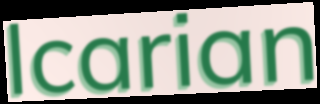
Icarian